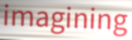
imagining